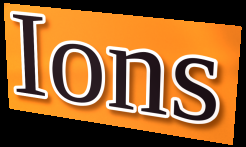
Ions